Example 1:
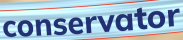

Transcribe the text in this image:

conservator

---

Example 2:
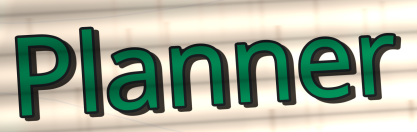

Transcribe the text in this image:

Planner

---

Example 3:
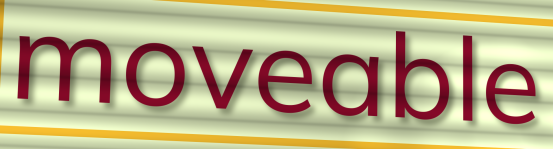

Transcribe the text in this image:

moveable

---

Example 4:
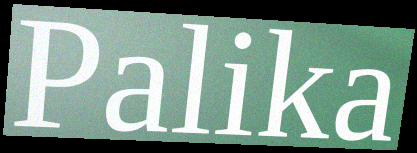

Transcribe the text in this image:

Palika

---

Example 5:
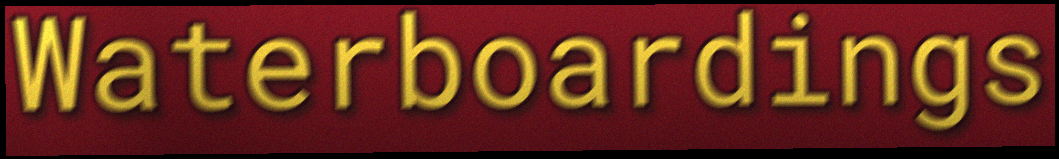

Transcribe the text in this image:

Waterboardings